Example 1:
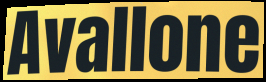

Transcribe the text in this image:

Avallone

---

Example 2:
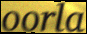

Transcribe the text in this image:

oorla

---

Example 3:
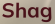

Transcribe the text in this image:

Shag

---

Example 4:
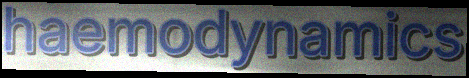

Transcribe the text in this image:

haemodynamics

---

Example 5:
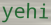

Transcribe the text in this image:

yehi